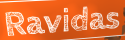
Ravidas